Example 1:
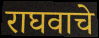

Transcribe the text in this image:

राघवाचे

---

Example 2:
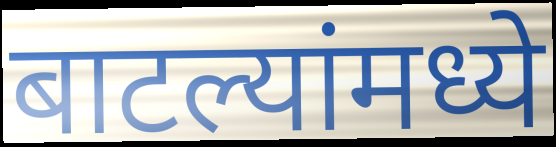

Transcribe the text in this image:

बाटल्यांमध्ये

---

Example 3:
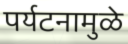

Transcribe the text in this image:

पर्यटनामुळे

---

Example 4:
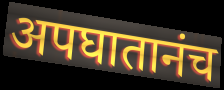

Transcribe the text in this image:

अपघातानंच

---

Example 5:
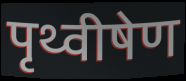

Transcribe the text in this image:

पृथ्वीषेण